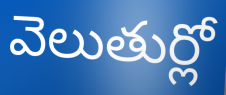
వెలుతుర్లో